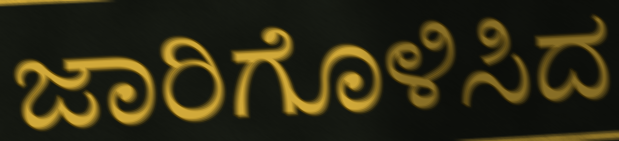
ಜಾರಿಗೊಳಿಸಿದ